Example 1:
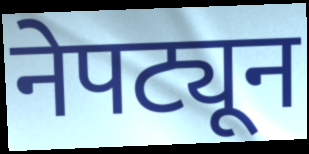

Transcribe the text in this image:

नेपट्यून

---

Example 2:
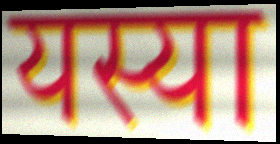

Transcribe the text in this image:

यस्या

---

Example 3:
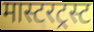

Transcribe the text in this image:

मास्टरट्रस्ट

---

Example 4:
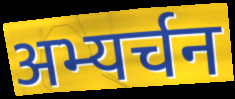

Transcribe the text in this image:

अभ्यर्चन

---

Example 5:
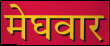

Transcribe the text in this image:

मेघवार